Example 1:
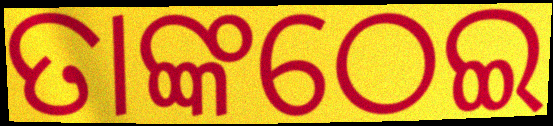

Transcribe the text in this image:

ତାଙ୍କଠେଇ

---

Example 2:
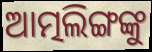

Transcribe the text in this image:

ଆତ୍ମଲିଙ୍ଗଙ୍କୁ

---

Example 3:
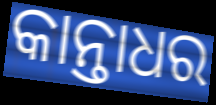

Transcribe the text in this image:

କାନ୍ତାଧର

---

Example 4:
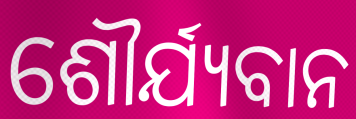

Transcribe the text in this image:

ଶୌର୍ଯ୍ୟବାନ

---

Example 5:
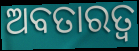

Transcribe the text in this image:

ଅବତାରତ୍ୱ